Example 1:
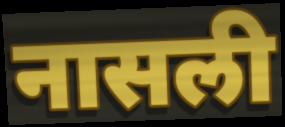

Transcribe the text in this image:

नासली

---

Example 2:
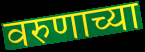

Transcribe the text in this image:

वरुणाच्या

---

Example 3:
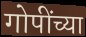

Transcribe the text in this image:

गोपींच्या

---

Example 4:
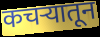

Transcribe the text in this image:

कचर्‍यातून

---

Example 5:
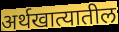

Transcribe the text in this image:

अर्थखात्यातील